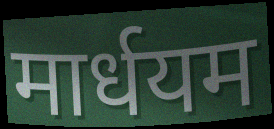
मार्धयम